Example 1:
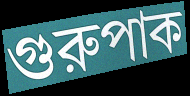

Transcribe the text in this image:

গুরুপাক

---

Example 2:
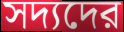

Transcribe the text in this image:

সদ্যদের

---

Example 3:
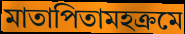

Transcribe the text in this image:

মাতাপিতামহক্রমে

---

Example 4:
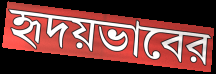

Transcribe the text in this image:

হৃদয়ভাবের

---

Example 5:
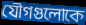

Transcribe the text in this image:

যৌগগুলোকে